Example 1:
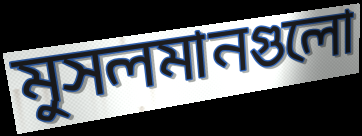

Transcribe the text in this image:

মুসলমানগুলো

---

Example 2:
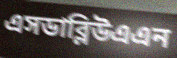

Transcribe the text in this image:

এসডাব্লিউএএন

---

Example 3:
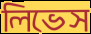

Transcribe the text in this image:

লিভেস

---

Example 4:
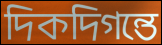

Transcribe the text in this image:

দিকদিগন্তে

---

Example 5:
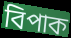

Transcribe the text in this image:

বিপাক